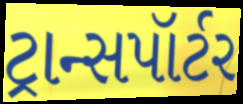
ટ્રાન્સપૉર્ટર